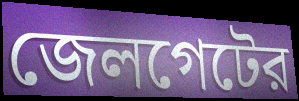
জেলগেটের